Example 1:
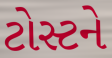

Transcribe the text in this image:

ટોસ્ટને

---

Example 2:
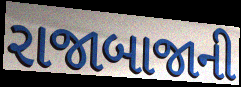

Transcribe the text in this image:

રાજાબાજાની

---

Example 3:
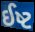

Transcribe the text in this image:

ઈષ્ટ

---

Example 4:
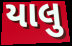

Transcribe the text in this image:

યાલુ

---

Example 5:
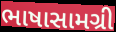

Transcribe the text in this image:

ભાષાસામગ્રી